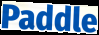
Paddle